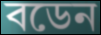
বডেন